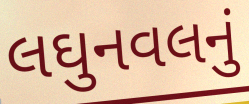
લઘુનવલનું